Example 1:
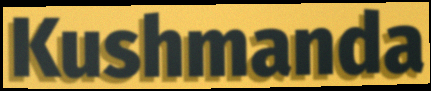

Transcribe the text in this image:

Kushmanda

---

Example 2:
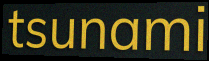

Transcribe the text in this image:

tsunami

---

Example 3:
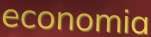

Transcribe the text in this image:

economia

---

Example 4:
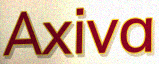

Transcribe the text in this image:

Axiva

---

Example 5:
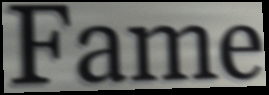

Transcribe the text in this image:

Fame